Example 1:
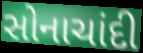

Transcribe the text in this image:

સોનાચાંદી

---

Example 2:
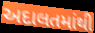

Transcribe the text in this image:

અદાલતમાંથી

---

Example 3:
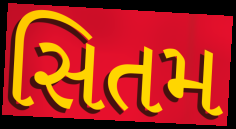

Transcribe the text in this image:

સિતમ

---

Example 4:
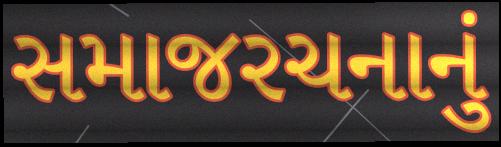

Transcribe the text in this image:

સમાજરચનાનું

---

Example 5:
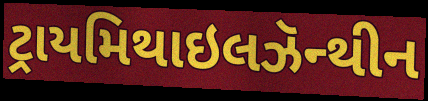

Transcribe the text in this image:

ટ્રાયમિથાઇલઝૅન્થીન